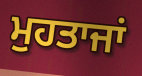
ਮੁਹਤਾਜਾਂ